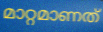
മാറ്റമാണത്